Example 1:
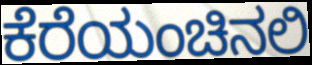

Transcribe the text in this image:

ಕೆರೆಯಂಚಿನಲಿ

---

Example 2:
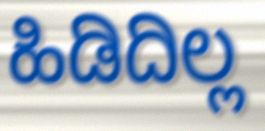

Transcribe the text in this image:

ಹಿಡಿದಿಲ್ಲ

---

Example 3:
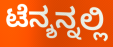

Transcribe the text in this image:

ಟೆನ್ಶನ್ನಲ್ಲಿ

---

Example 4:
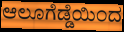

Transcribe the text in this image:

ಆಲೂಗೆಡ್ಡೆಯಿಂದ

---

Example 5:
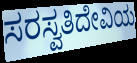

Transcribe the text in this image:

ಸರಸ್ವತಿದೇವಿಯ